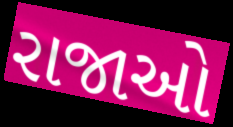
રાજાઓ